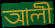
আলী